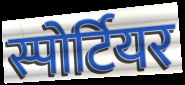
स्पोर्टियर